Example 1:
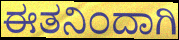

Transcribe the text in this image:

ಈತನಿಂದಾಗಿ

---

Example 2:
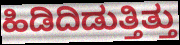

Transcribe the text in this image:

ಹಿಡಿದಿಡುತ್ತಿತ್ತು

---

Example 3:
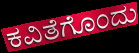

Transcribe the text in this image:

ಕವಿತೆಗೊಂದು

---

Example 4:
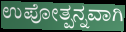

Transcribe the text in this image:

ಉಪೋತ್ಪನ್ನವಾಗಿ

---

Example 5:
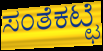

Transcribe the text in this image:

ಸಂತೆಕಟ್ಟೆ